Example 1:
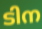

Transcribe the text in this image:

ടിന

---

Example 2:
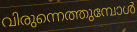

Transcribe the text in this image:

വിരുന്നെത്തുമ്പോൾ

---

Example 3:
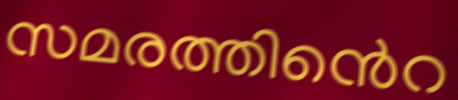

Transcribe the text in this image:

സമരത്തിൻെറ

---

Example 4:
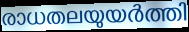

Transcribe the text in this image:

രാധതലയുയർത്തി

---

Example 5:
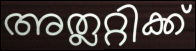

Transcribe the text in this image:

അത്ലറ്റിക്ക്